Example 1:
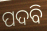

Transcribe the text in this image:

ପଦବି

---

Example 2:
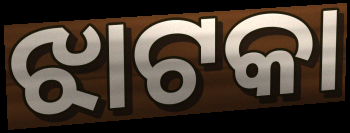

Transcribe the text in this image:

ଝାଟକା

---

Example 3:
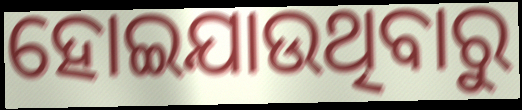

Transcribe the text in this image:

ହୋଇଯାଉଥିବାରୁ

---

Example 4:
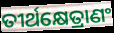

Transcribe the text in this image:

ତୀର୍ଥକ୍ଷେତ୍ରାଣଂ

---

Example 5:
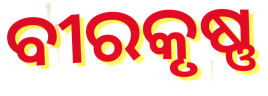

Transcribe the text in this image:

ବୀରକୃଷ୍ଣ